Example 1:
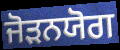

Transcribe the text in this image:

ਜੋੜਨਯੋਗ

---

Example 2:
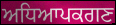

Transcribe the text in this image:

ਅਧਿਆਪਕਗਣ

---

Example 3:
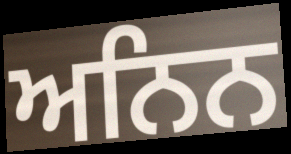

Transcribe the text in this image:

ਅਨਿਨ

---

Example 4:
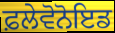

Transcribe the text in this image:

ਫ਼ਲੇਵੋਨੋਇਡ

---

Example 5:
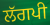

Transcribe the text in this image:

ਲੱਗਪੀ